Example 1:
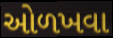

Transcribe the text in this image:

ઓળખવા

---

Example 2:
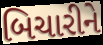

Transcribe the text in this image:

બિચારીને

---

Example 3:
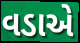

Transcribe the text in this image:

વડાએ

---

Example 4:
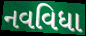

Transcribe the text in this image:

નવવિધા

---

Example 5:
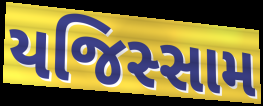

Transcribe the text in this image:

યજિસ્સામ